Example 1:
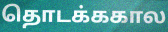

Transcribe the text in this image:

தொடக்ககால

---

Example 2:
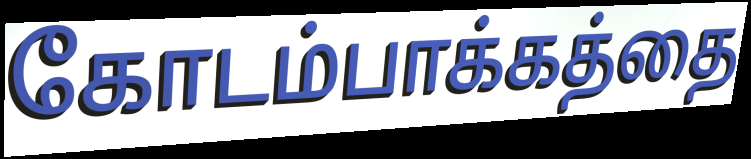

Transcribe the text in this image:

கோடம்பாக்கத்தை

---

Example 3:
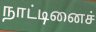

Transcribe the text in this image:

நாட்டினைச்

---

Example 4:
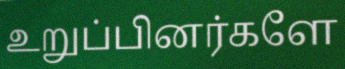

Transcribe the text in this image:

உறுப்பினர்களே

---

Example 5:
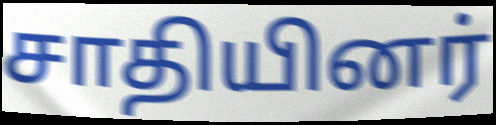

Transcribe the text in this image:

சாதியினர்